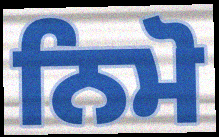
ਨਿਮੋ